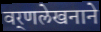
वर्णलेखनाने